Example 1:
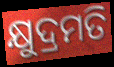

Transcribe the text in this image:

କ୍ଷୁଦ୍ରମତି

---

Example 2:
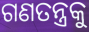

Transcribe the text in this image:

ଗଣତନ୍ତ୍ରକୁ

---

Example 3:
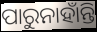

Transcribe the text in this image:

ପାରୁନାହାଁନ୍ତି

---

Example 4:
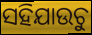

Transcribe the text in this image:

ସହିଯାଉଚୁ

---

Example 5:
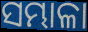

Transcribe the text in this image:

ସମ୍ଭାଳା